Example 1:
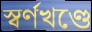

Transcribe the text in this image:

স্বর্ণখণ্ডে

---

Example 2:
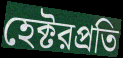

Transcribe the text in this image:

হেক্টরপ্রতি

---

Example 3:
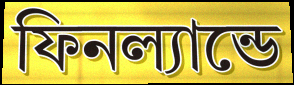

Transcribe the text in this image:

ফিনল্যান্ডে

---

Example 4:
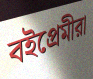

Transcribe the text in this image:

বইপ্রেমীরা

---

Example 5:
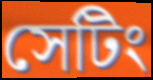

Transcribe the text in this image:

সেটিং